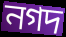
নগদ